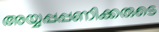
അയ്യപ്പപ്പണിക്കരുടെ